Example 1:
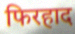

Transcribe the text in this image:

फिरहाद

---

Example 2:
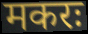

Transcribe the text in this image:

मकरः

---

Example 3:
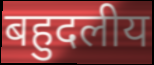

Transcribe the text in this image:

बहुदलीय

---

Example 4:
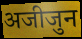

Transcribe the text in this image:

अजीजुन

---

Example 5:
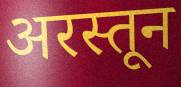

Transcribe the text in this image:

अरस्तून